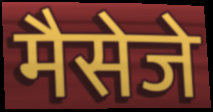
मैसेजे